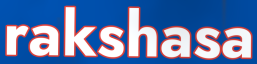
rakshasa